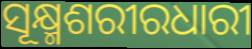
ସୂକ୍ଷ୍ମଶରୀରଧାରୀ